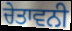
ਚੇਤਾਵਨੀ